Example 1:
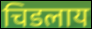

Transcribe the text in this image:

चिडलाय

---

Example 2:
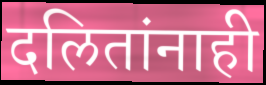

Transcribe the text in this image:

दलितांनाही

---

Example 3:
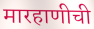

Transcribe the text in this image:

मारहाणीची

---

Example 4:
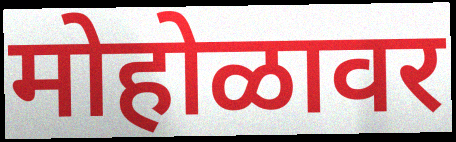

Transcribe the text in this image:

मोहोळावर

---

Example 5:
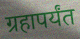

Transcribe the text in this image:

ग्रहापर्यंत